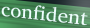
confident